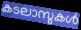
കടലാസുകൾ